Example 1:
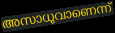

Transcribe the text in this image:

അസാധുവാണെന്ന്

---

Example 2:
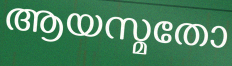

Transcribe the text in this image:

ആയസ്മതോ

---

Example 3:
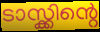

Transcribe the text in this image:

ടാസ്ക്കിന്റെ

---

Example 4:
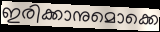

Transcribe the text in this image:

ഇരിക്കാനുമൊക്കെ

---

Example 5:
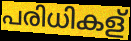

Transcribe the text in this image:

പരിധികള്